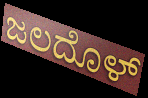
ಜಲದೊಳ್